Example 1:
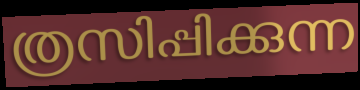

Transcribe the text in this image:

ത്രസിപ്പിക്കുന്ന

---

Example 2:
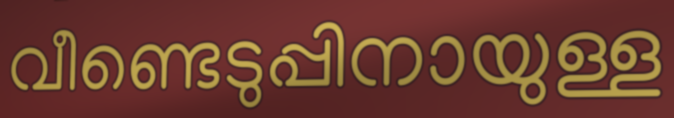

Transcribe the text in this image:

വീണ്ടെടുപ്പിനായുള്ള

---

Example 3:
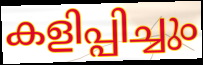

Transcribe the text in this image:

കളിപ്പിച്ചും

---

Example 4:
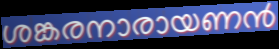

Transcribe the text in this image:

ശങ്കരനാരായണൻ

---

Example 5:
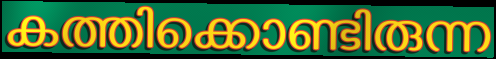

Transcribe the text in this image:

കത്തിക്കൊണ്ടിരുന്ന